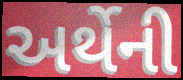
અર્થેની